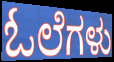
ಓಲೆಗಳು